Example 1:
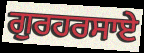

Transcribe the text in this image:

ਗੁਰਹਰਸਾਏ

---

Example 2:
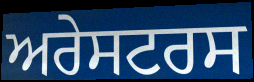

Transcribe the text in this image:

ਅਰੇਸਟਰਸ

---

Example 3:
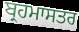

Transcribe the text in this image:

ਬ੍ਰਹਮਾਸਤਰ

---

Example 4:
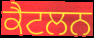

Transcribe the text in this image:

ਕੈਟਲਨ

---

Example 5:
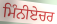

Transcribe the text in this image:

ਮਿੰਨੀਏਚਰ